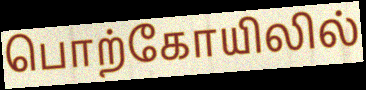
பொற்கோயிலில்